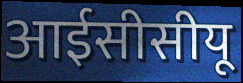
आईसीसीयू